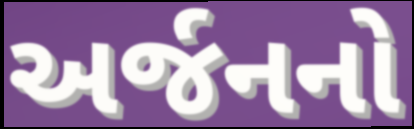
અર્જનનો